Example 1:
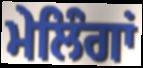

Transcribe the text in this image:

ਮੇਲਿੰਗਾਂ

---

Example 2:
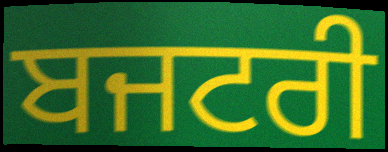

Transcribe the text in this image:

ਬਜਟਰੀ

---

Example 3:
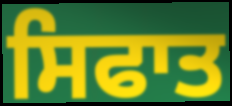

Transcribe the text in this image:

ਸਿਫਾਤ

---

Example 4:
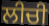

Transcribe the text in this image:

ਲੀਚੀ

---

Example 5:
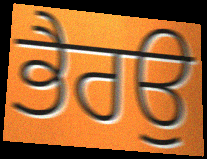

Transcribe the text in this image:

ਭੈਰਉ